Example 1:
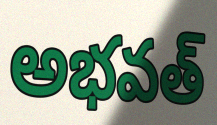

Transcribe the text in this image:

అభవత్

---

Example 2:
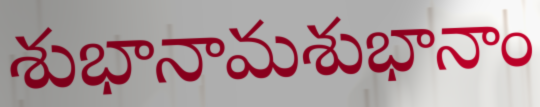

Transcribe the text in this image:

శుభానామశుభానాం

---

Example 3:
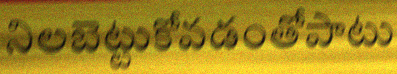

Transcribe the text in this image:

నిలబెట్టుకోవడంతోపాటు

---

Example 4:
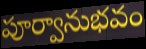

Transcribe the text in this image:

పూర్వానుభవం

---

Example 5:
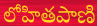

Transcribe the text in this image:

లోహితపాణి